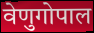
वेणुगोपाल